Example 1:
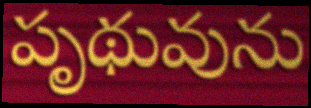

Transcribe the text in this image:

పృథువును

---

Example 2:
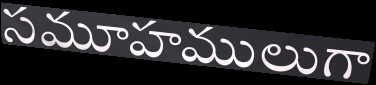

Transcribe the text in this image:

సమూహములుగా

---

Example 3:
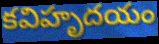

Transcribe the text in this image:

కవిహృదయం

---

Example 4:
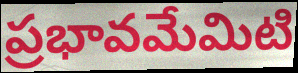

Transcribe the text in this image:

ప్రభావమేమిటి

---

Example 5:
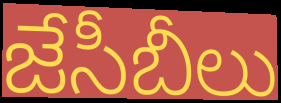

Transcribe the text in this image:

జేసీబీలు